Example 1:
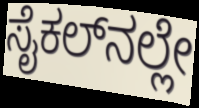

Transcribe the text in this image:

ಸೈಕಲ್‌ನಲ್ಲೇ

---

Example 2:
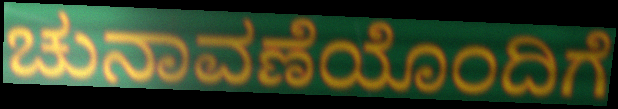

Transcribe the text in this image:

ಚುನಾವಣೆಯೊಂದಿಗೆ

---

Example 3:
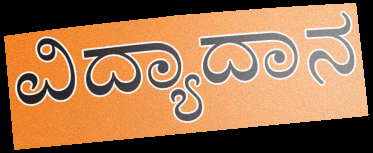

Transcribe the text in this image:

ವಿದ್ಯಾದಾನ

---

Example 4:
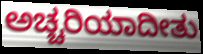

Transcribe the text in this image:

ಅಚ್ಚರಿಯಾದೀತು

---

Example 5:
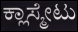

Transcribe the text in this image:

ಕ್ಲಾಸ್ಮೇಟು